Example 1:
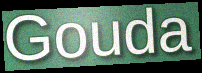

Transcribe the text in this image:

Gouda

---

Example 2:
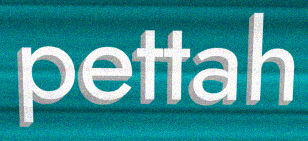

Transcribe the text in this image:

pettah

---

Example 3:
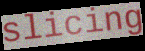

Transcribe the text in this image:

slicing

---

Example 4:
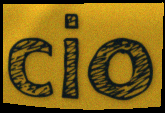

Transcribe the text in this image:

cio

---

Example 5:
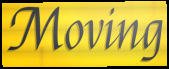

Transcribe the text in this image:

Moving